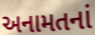
અનામતનાં